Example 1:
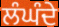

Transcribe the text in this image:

ਲੰਘੰਦੇ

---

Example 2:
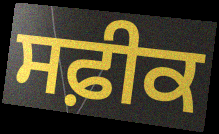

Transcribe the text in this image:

ਸਫ਼ੀਕ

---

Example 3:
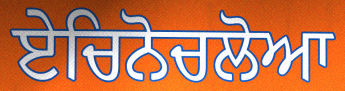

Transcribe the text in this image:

ਏਚਿਨੋਚਲੋਆ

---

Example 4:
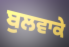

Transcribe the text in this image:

ਬੁਲਵਾਕੇ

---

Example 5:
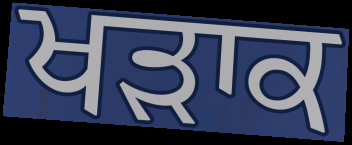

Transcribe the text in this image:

ਖੜਾਕ